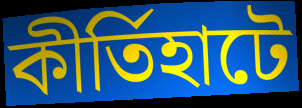
কীর্তিহাটে